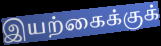
இயற்கைக்குக்